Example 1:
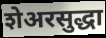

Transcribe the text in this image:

शेअरसुद्धा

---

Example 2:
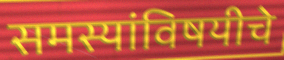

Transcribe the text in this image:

समस्यांविषयीचे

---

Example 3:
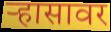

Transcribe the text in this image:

ऱ्हासावर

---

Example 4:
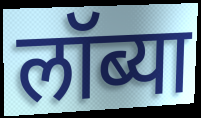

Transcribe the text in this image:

लॉब्या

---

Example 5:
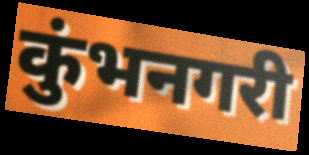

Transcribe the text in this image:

कुंभनगरी